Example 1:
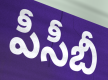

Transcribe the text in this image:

పీసీబీ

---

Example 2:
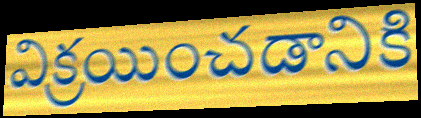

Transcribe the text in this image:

విక్రయించడానికి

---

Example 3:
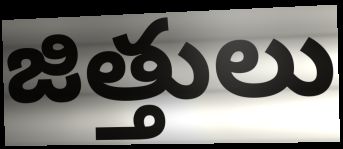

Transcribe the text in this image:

జిత్తులు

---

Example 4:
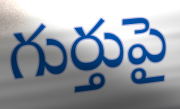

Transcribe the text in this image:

గుర్తుపై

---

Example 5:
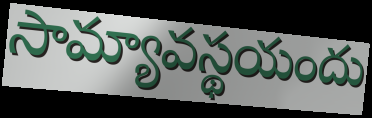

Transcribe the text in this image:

సామ్యావస్థయందు